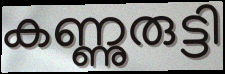
കണ്ണുരുട്ടി